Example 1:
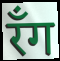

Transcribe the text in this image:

रॅंग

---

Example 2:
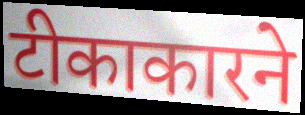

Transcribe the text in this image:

टीकाकारने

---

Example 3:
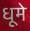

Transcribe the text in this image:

धूमे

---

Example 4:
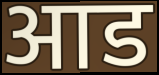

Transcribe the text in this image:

आड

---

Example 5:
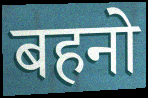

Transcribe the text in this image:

बहनो